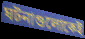
ঘটনাগুলোকেই